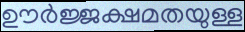
ഊർജ്ജക്ഷമതയുള്ള